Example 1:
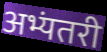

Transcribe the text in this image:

अभ्यंतरी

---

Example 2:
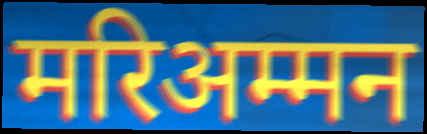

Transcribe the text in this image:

मरिअम्मन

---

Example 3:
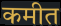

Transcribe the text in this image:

कमीत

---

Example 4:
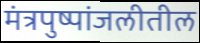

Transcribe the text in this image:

मंत्रपुष्पांजलीतील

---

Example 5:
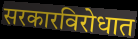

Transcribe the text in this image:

सरकारविरोधात